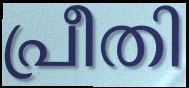
പ്രീതി